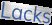
Lacks